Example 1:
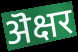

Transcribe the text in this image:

ऄक्षर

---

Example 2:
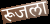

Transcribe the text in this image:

रूजला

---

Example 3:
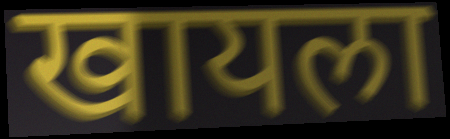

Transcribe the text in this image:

खायला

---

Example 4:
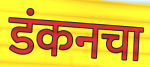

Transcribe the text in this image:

डंकनचा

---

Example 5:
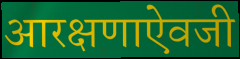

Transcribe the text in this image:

आरक्षणाऐवजी